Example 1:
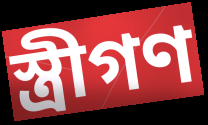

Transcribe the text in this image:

স্ত্রীগণ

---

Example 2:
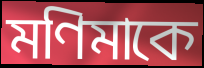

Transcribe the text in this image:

মণিমাকে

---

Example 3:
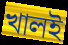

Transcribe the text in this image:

খালই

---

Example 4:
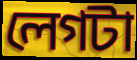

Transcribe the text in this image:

লেগটা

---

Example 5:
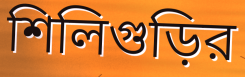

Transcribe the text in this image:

শিলিগুড়ির